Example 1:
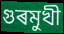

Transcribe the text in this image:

গুৰমুখী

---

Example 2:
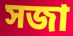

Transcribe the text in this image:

সজা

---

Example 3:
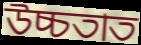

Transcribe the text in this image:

উচ্চতাত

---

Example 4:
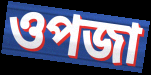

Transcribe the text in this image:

ওপজা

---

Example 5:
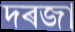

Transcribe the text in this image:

দৰজা